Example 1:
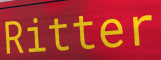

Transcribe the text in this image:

Ritter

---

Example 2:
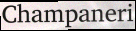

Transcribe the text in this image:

Champaneri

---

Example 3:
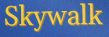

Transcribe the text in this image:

Skywalk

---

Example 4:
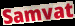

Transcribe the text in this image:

Samvat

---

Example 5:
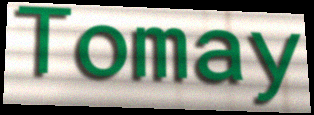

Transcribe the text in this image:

Tomay